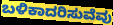
ಬಳಿಕಾದರಿಸುವೆವು